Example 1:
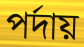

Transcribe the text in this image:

পর্দায়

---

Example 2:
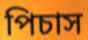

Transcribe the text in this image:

পিচাস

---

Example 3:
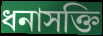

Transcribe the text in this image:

ধনাসক্তি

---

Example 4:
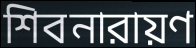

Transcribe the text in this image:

শিবনারায়ণ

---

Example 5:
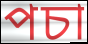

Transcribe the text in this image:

পচা